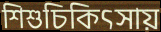
শিশুচিকিৎসায়